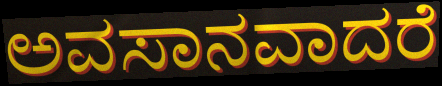
ಅವಸಾನವಾದರೆ